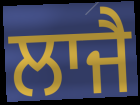
ਲਾਜੈ